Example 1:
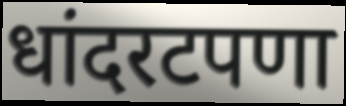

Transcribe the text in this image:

धांदरटपणा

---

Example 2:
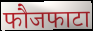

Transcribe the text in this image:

फौजफाटा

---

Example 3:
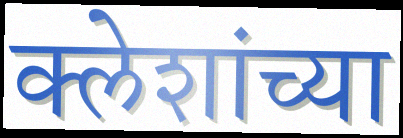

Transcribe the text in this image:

क्लेशांच्या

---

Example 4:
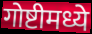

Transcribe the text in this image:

गोष्टीमध्ये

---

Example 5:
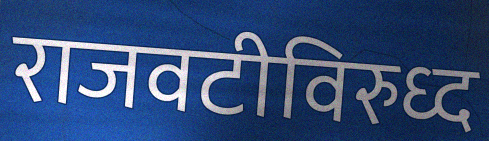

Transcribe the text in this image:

राजवटीविरुध्द